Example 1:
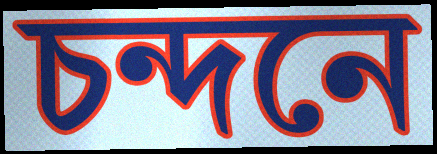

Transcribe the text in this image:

চন্দনে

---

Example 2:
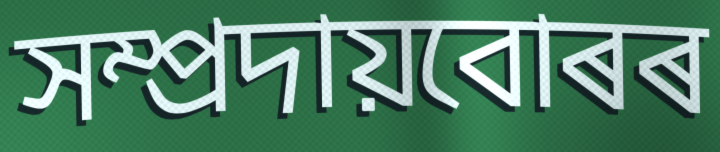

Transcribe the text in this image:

সম্প্ৰদায়বোৰৰ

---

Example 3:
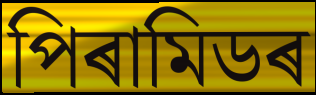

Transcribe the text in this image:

পিৰামিডৰ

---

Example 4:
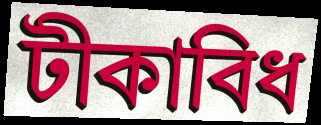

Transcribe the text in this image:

টীকাবিধ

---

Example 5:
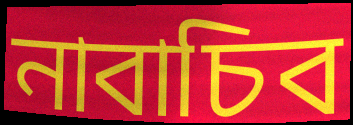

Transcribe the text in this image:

নাবাচিব